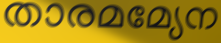
താരമമ്യേന